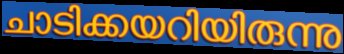
ചാടിക്കയറിയിരുന്നു